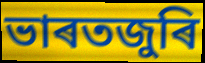
ভাৰতজুৰি